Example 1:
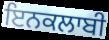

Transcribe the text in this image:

ਇਨਕਲਾਬੀ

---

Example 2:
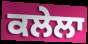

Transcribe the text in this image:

ਕਲੇਲਾ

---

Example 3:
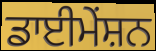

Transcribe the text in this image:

ਡਾਈਮੇਂਸ਼ਨ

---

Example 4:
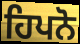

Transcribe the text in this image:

ਹਿਪਨੋ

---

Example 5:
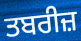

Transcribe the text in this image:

ਤਬਰੀਜ਼